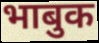
भाबुक